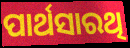
ପାର୍ଥସାରଥି